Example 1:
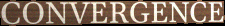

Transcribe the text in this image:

CONVERGENCE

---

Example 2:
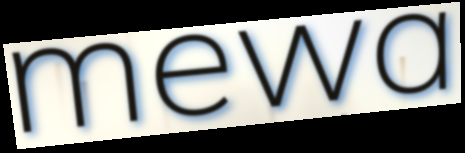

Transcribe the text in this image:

mewa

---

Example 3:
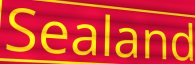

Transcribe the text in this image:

Sealand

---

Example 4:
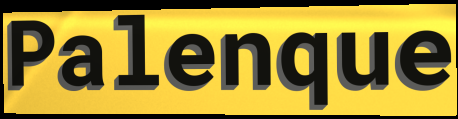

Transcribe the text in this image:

Palenque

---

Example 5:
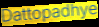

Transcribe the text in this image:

Dattopadhye